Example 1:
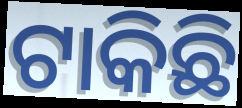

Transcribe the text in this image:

ଟାକିଛି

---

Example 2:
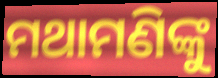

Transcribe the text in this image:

ମଥାମଣିଙ୍କୁ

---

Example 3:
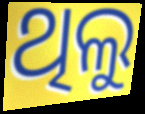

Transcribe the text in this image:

ଥିଲୁ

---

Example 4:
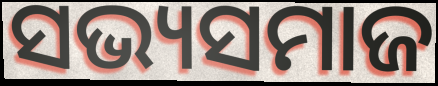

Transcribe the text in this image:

ସଭ୍ୟସମାଜ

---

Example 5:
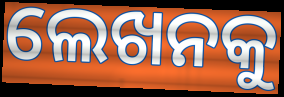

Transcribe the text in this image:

ଲେଖନକୁ